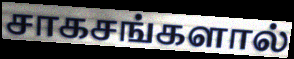
சாகசங்களால்